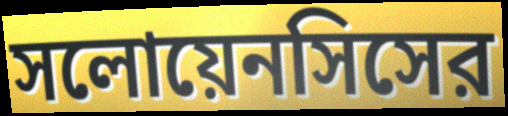
সলোয়েনসিসের